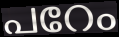
പറേം